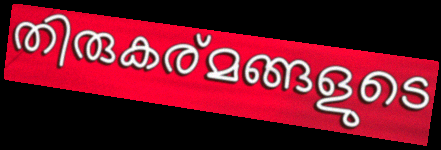
തിരുകര്മങ്ങളുടെ